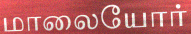
மாலையோர்